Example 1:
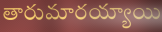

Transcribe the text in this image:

తారుమారయ్యాయి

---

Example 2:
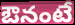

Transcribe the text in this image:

ఔనంటే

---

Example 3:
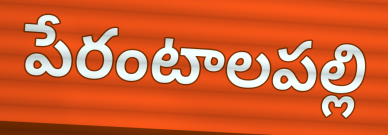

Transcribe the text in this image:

పేరంటాలపల్లి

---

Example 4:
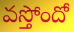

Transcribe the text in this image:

వస్తోందో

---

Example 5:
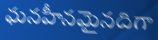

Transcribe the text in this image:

ఘనహీనమైనదిగా